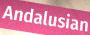
Andalusian